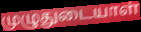
முழுதுடையாள்